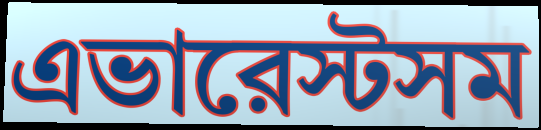
এভারেস্টসম